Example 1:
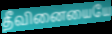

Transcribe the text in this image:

தீவினையையே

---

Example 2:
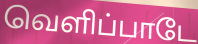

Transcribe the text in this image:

வெளிப்பாடே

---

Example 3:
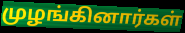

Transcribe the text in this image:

முழங்கினார்கள்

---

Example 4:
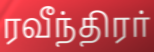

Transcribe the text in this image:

ரவீந்திரர்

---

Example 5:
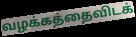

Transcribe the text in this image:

வழக்கத்தைவிடக்